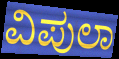
ವಿಪುಲಾ